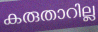
കരുതാറില്ല